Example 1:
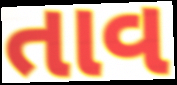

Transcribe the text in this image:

તાવ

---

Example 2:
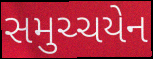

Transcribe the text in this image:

સમુચ્ચયેન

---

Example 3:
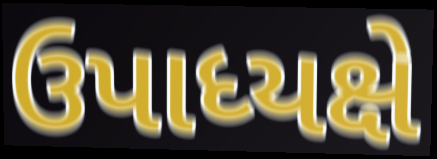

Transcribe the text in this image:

ઉપાધ્યક્ષે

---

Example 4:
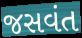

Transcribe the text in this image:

જસવંત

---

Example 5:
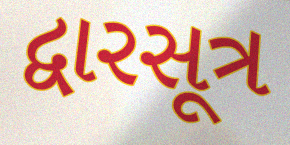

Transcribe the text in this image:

દ્વારસૂત્ર